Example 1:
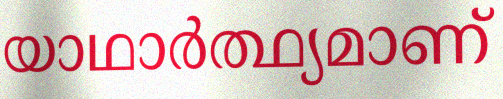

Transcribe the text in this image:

യാഥാർത്ഥ്യമാണ്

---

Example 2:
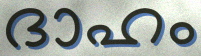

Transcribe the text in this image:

ദാഹം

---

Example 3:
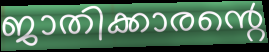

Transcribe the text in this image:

ജാതിക്കാരന്റെ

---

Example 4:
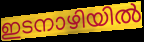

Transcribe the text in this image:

ഇടനാഴിയിൽ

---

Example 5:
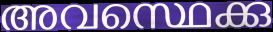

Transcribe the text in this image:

അവസ്ഥെക്കു